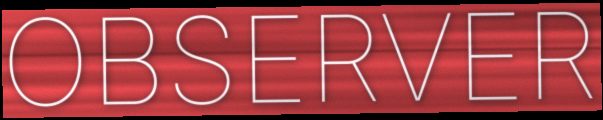
OBSERVER